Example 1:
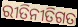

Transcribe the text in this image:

ରୀତିନୀତିଗତ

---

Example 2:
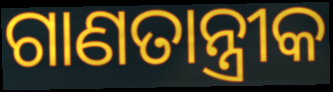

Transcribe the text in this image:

ଗାଣତାନ୍ତ୍ରୀକ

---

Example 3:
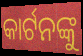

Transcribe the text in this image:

କାର୍ଟନଙ୍କୁ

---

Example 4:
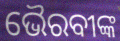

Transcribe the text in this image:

ଭୈରବୀଙ୍କ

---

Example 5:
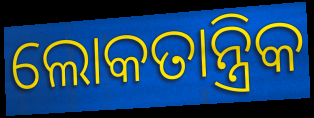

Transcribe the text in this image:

ଲୋକତାନ୍ତ୍ରିକ